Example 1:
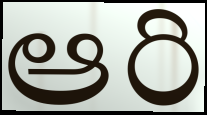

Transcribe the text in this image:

ఆరి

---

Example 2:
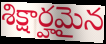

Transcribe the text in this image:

శిక్షార్హమైన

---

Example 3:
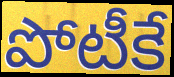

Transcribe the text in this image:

పోటీకే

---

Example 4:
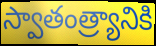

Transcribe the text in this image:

స్వాతంత్ర్యానికి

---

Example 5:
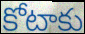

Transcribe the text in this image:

కోటాకు